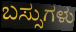
ಬಸ್ಸುಗಳು